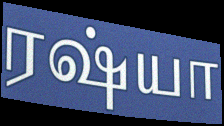
ரஷ்யா